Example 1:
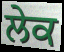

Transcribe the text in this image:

ਲੇਕ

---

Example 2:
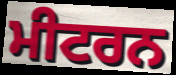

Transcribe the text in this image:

ਮੀਟਰਨ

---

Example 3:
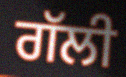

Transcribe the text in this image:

ਗੱਲੀ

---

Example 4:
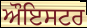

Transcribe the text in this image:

ਔਇਸਟਰ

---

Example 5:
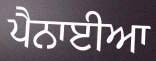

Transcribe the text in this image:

ਪੈਨਾਈਆ